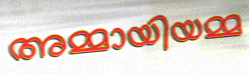
അമ്മായിയമ്മ